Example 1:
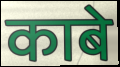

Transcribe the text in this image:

काबे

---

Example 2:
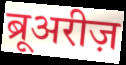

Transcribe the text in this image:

ब्रूअरीज़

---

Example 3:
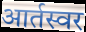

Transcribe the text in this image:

आर्तस्वर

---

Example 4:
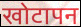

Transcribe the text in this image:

खोटापन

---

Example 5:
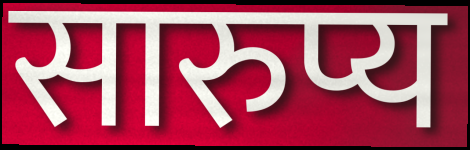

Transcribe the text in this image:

सारुप्य